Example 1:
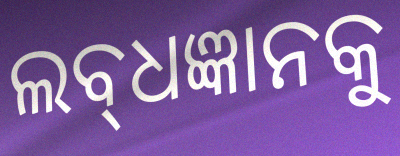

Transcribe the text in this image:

ଲବ୍‌ଧଜ୍ଞାନକୁ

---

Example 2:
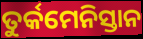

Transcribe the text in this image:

ତୁର୍କମେନିସ୍ତାନ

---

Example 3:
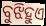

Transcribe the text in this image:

ବୁଝିହୁଏ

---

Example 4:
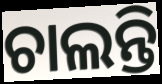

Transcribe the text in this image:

ଚାଲନ୍ତି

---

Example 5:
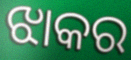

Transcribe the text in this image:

ଝାକର